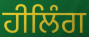
ਹੀਲਿੰਗ